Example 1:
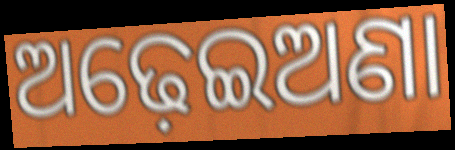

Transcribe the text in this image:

ଅଢ଼େଇଅଣା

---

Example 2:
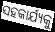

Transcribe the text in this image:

ସହକାର୍ଯ୍ୟକୁ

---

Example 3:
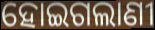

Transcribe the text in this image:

ହୋଇଗଲାଣୀ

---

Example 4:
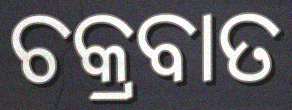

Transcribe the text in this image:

ଚକ୍ରବାତ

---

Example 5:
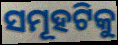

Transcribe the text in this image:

ସମୂହଟିକୁ